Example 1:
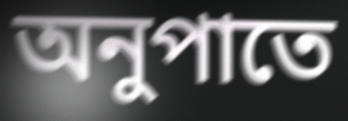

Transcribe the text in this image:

অনুপাতে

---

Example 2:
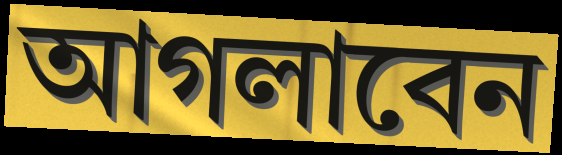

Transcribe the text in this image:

আগলাবেন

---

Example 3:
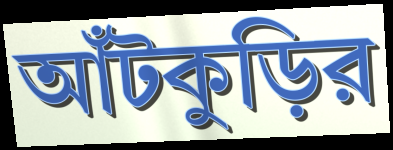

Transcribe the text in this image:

আঁটকুড়ির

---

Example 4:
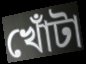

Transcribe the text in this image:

খোঁটা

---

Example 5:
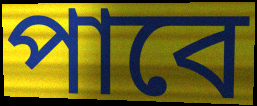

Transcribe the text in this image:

পাবে